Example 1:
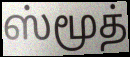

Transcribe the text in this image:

ஸ்மூத்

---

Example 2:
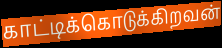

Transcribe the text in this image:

காட்டிக்கொடுக்கிறவன்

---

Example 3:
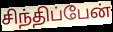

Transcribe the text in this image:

சிந்திப்பேன்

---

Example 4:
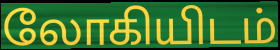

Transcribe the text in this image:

லோகியிடம்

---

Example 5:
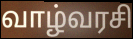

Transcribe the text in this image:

வாழ்வரசி